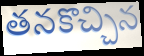
తనకొచ్చిన